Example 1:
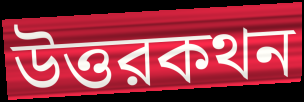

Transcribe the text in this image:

উত্তরকথন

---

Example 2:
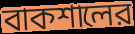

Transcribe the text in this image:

বাকশালের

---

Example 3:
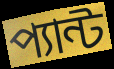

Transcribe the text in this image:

প্যান্ট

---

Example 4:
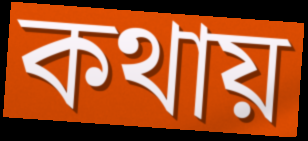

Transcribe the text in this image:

কথায়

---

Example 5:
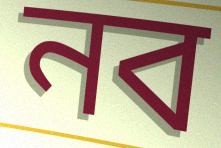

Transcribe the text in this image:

নব